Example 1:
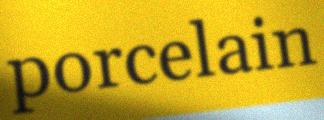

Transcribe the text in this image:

porcelain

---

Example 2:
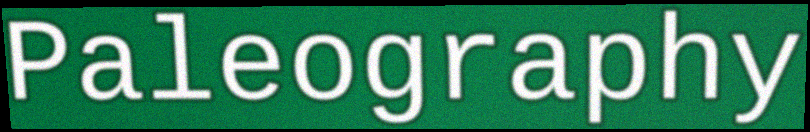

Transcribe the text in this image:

Paleography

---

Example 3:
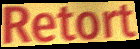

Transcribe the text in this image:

Retort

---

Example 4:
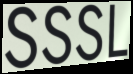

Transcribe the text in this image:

SSSL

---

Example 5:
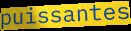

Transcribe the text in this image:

puissantes